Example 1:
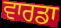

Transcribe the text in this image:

ਵਾਰਡਾ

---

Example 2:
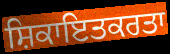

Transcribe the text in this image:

ਸ਼ਿਕਾਇਤਕਰਤਾ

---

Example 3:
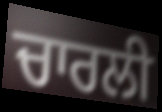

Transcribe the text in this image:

ਚਾਰਲੀ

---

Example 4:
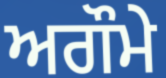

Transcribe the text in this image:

ਅਗੌਮੇ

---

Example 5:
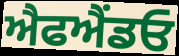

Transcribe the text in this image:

ਐਫਐਂਡਓ